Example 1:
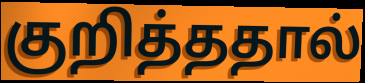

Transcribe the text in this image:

குறித்ததால்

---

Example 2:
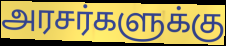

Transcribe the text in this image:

அரசர்களுக்கு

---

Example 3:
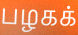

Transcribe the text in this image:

பழகக்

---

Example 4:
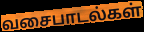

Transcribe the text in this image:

வசைபாடல்கள்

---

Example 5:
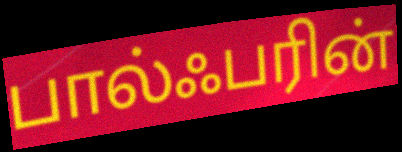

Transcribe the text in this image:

பால்ஃபரின்